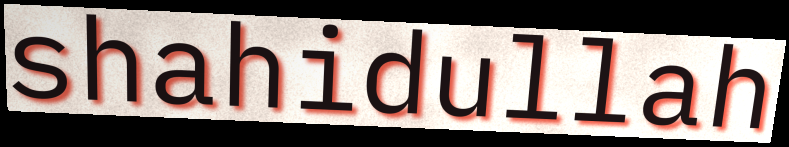
shahidullah